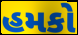
હમકો